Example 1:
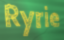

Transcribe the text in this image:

Ryrie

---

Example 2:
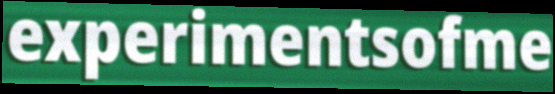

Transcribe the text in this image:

experimentsofme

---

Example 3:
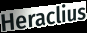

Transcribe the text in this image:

Heraclius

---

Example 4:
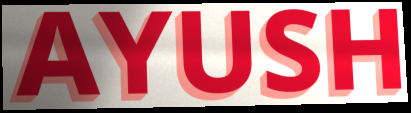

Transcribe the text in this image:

AYUSH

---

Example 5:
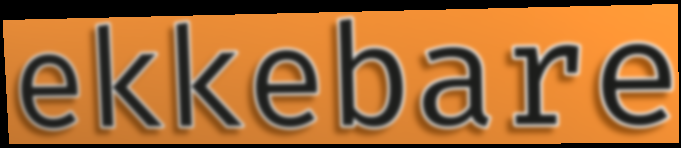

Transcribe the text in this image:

ekkebare